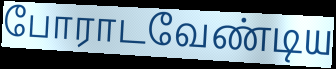
போராடவேண்டிய